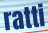
ratti